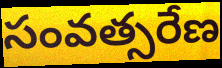
సంవత్సరేణ